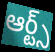
ఆర్ట్స్